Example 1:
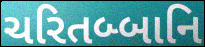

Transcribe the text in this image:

ચરિતબ્બાનિ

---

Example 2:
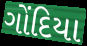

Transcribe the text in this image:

ગોંદિયા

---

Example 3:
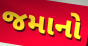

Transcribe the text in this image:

જમાનો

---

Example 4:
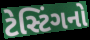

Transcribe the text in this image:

ટેસ્ટિંગનો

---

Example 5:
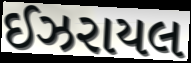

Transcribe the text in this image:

ઈઝરાયલ